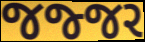
જજ્જર